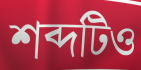
শব্দটিও